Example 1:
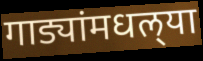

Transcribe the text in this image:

गाड्यांमधल्या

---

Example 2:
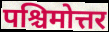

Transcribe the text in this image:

पश्चिमोत्तर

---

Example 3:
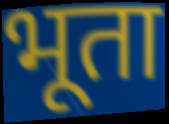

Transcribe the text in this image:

भूता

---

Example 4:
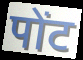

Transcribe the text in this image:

पोंट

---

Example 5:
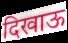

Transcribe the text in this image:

दिखाऊ